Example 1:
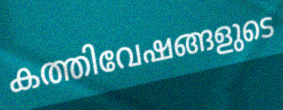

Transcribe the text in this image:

കത്തിവേഷങ്ങളുടെ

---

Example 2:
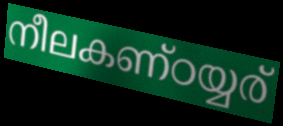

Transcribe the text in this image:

നീലകണ്ഠയ്യര്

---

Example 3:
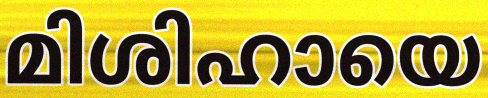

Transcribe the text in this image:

മിശിഹായെ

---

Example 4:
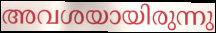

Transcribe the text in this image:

അവശയായിരുന്നു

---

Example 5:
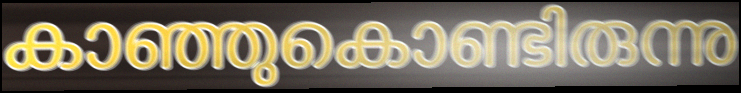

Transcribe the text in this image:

കാഞ്ഞുകൊണ്ടിരുന്നു